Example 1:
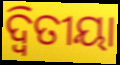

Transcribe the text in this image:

ଦ୍ଵିତୀୟା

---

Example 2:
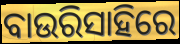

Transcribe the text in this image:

ବାଉରିସାହିରେ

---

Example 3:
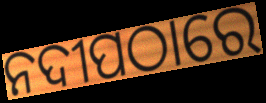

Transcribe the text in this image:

ନଦୀପଠାରେ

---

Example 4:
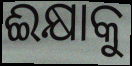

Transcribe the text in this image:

ଈକ୍ଷାକୁ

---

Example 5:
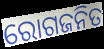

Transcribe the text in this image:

ରୋଗଜନିତ